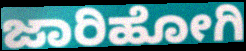
ಜಾರಿಹೋಗಿ